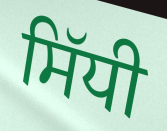
ਸਿੱਧੀ